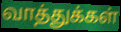
வாத்துக்கள்